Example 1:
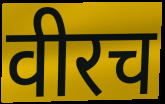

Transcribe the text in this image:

वीरच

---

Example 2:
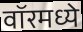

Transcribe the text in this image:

वॉरमध्ये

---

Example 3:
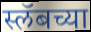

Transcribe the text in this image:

स्लॅबच्या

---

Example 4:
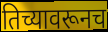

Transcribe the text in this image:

तिच्यावरूनच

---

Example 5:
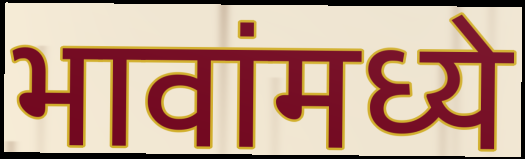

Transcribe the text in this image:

भावांमध्ये